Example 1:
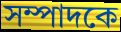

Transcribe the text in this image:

সম্পাদকে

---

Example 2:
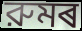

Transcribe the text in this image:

ৰুমৰ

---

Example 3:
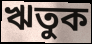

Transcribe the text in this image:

ঋতুক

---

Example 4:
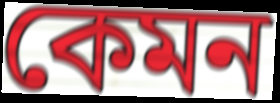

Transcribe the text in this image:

কেমন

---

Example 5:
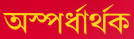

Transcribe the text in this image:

অস্পৰ্ধাৰ্থক